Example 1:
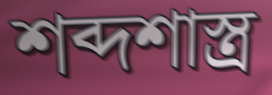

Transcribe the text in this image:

শব্দশাস্ত্র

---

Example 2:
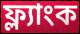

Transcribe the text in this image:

ফ্ল্যাংক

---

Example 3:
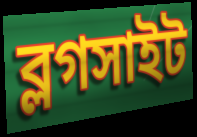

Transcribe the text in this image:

ব্লগসাইট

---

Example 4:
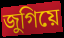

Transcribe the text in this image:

জুগিয়ে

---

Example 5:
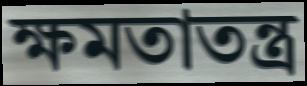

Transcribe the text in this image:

ক্ষমতাতন্ত্র